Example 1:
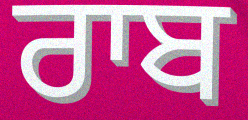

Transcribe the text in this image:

ਰਾਬ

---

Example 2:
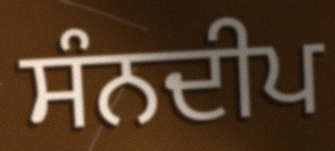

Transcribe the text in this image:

ਸੰਨਦੀਪ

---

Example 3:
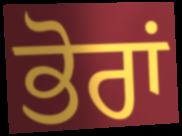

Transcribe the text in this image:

ਭੋਰਾਂ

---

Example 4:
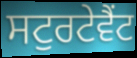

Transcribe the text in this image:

ਸਟੁਰਟੇਵੈਂਟ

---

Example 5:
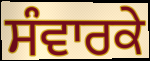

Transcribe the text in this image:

ਸੰਵਾਰਕੇ